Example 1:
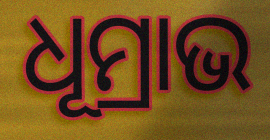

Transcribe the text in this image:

ଧୂମ୍ରାଭ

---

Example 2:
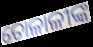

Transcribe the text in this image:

ତୋଳାଳୀଙ୍କ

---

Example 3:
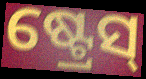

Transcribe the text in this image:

ଷ୍ଟ୍ରେସ୍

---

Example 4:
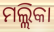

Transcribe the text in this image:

ମଲ୍ଲିକା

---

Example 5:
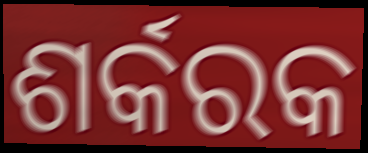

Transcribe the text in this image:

ଶର୍କରକ